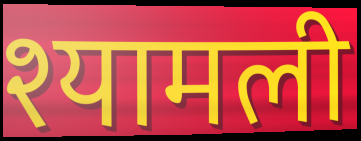
श्यामली